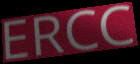
ERCC